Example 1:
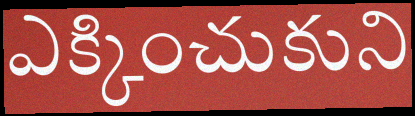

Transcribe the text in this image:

ఎక్కించుకుని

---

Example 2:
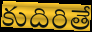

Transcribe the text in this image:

కుదిరితే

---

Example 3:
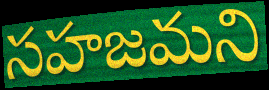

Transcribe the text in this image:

సహజమని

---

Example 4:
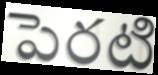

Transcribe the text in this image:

పెరటి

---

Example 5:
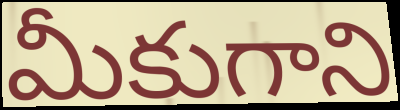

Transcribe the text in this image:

మీకుగాని